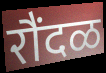
रौंदळ